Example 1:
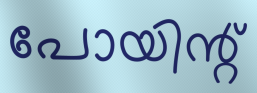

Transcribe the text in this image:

പോയിന്റ്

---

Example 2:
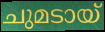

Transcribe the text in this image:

ചുമടായ്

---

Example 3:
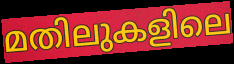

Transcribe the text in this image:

മതിലുകളിലെ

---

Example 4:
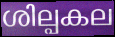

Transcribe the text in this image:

ശില്പകല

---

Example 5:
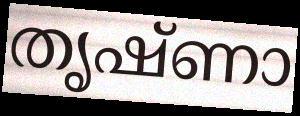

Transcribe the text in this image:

തൃഷ്ണാ